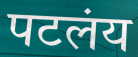
पटलंय